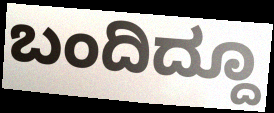
ಬಂದಿದ್ದೂ